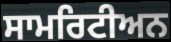
ਸਾਮਰਿਟੀਅਨ